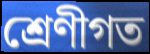
শ্রেণীগত